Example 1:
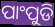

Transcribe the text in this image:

ପାଂପୁଡି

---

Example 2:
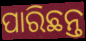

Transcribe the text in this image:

ପାରିଛନ୍ତ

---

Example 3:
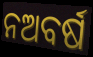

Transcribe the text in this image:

ନଅବର୍ଷ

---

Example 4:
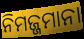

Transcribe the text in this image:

ନିମଜ୍ଜମାନା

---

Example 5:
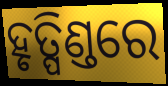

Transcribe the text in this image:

ହୃତ୍ପିଣ୍ଡରେ